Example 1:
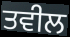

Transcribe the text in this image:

ਤਵੀਲ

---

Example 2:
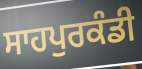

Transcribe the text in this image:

ਸਾਹਪੁਰਕੰਡੀ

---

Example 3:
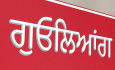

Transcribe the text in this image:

ਗੁਓਲਿਆਂਗ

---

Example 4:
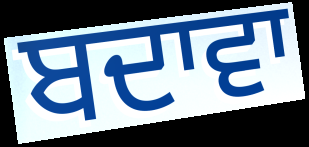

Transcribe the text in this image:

ਬਦਾਵਾ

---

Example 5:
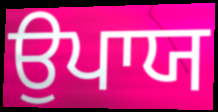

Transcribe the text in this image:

ਉਪਾਯ